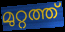
മുറ്റത്ത്